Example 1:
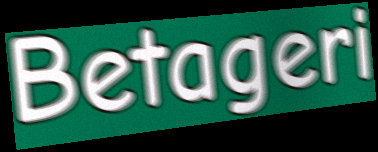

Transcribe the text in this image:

Betageri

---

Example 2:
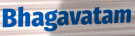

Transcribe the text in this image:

Bhagavatam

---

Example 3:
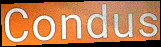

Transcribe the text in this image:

Condus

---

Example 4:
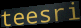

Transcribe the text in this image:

teesri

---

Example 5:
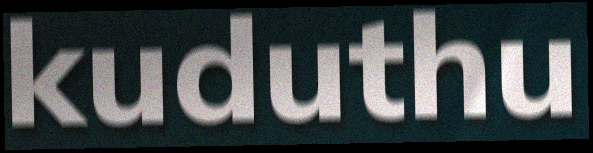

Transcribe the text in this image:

kuduthu